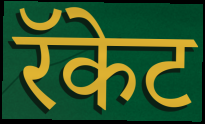
रॅकेट